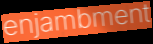
enjambment